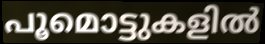
പൂമൊട്ടുകളിൽ